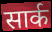
सार्क